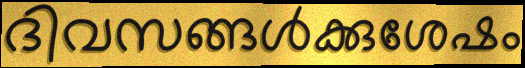
ദിവസങ്ങൾക്കുശേഷം